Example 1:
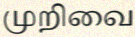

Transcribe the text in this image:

முறிவை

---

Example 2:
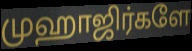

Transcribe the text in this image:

முஹாஜிர்களே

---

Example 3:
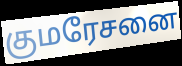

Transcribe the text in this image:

குமரேசனை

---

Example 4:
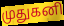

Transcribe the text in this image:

முதுகனி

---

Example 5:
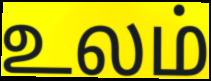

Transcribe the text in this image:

உலம்